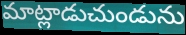
మాట్లాడుచుండును